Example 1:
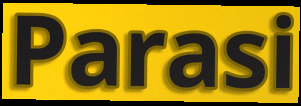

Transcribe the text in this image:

Parasi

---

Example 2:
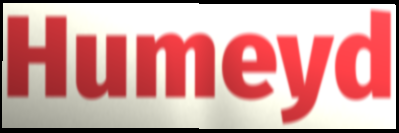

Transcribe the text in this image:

Humeyd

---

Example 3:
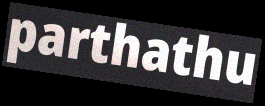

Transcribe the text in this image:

parthathu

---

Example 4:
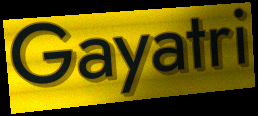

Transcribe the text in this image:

Gayatri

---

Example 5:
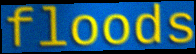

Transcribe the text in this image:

floods